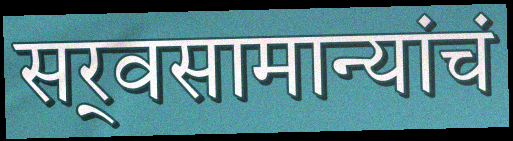
सर्वसामान्यांचं